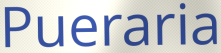
Pueraria